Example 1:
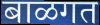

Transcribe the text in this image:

बाळगत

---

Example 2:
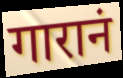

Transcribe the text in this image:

गारानं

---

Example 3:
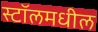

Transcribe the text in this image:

स्टॉलमधील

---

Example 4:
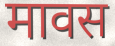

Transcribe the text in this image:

मावस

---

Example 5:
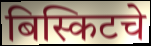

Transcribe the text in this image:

बिस्किटचे